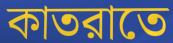
কাতরাতে